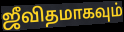
ஜீவிதமாகவும்